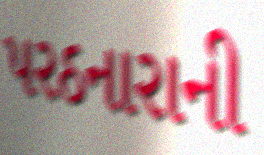
પરઠનારાની